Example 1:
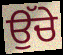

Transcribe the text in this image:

ਉੱਚੇ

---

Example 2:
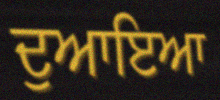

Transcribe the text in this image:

ਦੁਆਇਆ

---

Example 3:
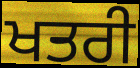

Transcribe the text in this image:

ਖਤਰੀ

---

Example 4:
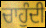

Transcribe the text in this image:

ਚਾਹੁੰਦੀ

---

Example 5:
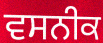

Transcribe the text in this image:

ਵਸਨੀਕ